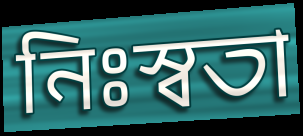
নিঃস্বতা